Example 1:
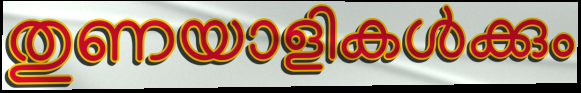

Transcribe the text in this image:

തുണയാളികൾക്കും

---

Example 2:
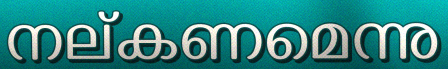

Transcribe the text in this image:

നല്‌കണമെന്നു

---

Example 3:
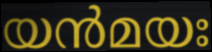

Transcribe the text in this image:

യൻമയഃ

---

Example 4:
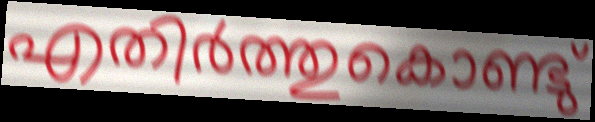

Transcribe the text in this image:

എതിർത്തുകൊണ്ടു്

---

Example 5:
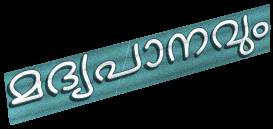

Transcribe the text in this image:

മദ്യപാനവും